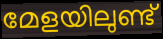
മേളയിലുണ്ട്